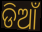
ଡିଆଁ